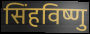
सिंहविष्णु